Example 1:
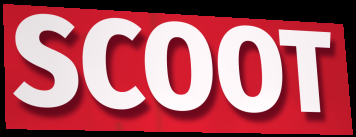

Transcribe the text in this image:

SCOOT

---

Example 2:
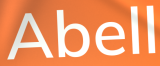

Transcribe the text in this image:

Abell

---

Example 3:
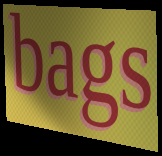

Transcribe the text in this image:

bags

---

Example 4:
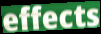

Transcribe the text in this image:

effects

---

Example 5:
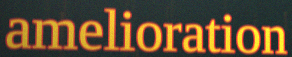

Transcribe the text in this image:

amelioration